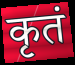
कृतं